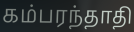
கம்பரந்தாதி